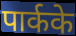
पार्कके